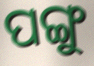
ପଙ୍ଗୁ